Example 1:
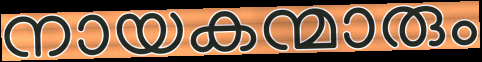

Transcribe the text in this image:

നായകന്മാരും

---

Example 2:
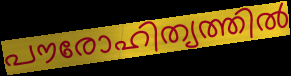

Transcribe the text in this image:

പൗരോഹിത്യത്തിൽ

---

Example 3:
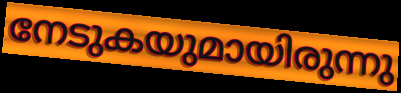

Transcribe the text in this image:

നേടുകയുമായിരുന്നു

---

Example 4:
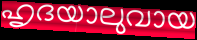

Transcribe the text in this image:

ഹൃദയാലുവായ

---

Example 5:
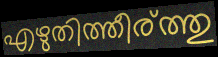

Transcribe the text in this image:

എഴുതിത്തീര്ത്തു